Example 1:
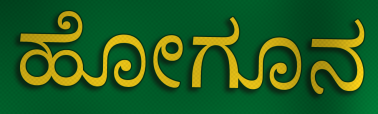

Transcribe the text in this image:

ಹೋಗೂನ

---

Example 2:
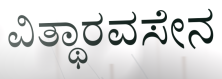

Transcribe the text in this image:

ವಿತ್ಥಾರವಸೇನ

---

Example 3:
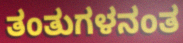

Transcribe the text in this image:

ತಂತುಗಳನಂತ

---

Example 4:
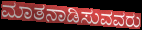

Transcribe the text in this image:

ಮಾತನಾಡಿಸುವವರು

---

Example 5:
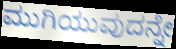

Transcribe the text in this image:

ಮುಗಿಯುವುದನ್ನೇ